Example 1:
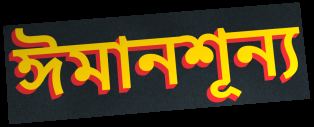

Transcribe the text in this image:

ঈমানশূন্য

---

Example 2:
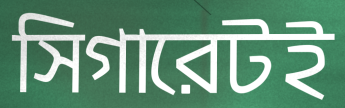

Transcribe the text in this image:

সিগারেটই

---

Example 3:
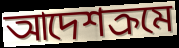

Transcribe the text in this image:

আদেশক্রমে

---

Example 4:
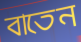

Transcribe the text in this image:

বাতেন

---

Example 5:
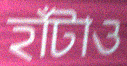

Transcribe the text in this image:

হাঁটাও